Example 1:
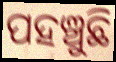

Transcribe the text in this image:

ପହଞ୍ଚୁଛି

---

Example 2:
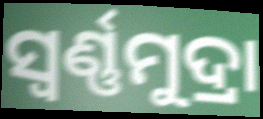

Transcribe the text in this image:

ସ୍ୱର୍ଣ୍ଣମୁଦ୍ରା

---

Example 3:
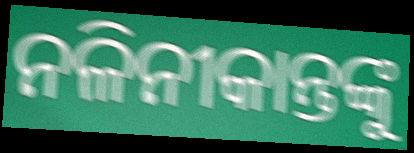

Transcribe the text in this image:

ନଳିନୀକାନ୍ତଙ୍କୁ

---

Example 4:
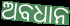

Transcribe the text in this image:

ଅବଧାନ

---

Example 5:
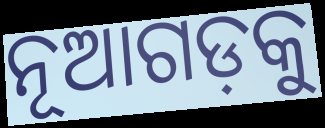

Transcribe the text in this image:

ନୂଆଗଡ଼କୁ